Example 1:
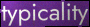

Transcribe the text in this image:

typicality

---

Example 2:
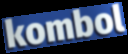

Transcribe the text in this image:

kombol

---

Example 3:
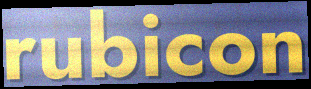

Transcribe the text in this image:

rubicon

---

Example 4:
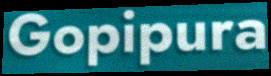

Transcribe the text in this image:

Gopipura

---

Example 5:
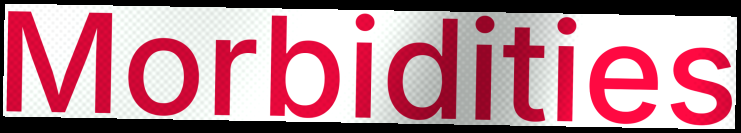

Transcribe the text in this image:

Morbidities